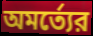
অমর্ত্যের